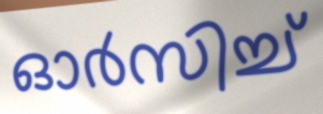
ഓർസിച്ച്